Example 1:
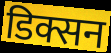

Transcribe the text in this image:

डिक्सन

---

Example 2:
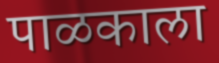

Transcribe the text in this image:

पाळकाला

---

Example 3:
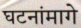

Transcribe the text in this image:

घटनांमागे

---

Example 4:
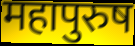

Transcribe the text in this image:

महापुरुष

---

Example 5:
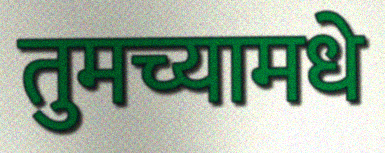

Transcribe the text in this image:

तुमच्यामधे